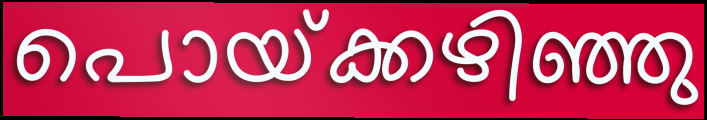
പൊയ്‌ക്കഴിഞ്ഞു